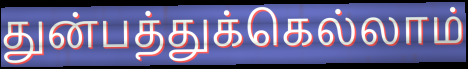
துன்பத்துக்கெல்லாம்